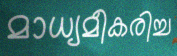
മാധ്യമീകരിച്ച